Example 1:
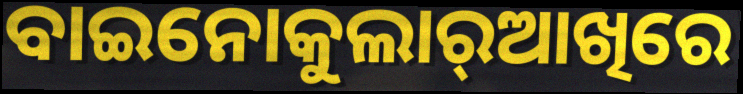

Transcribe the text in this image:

ବାଇନୋକୁଲାର୍‌ଆଖିରେ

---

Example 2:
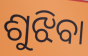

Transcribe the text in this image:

ଶୁଝିବା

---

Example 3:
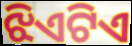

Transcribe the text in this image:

ଝିଏଟିଏ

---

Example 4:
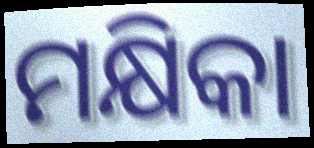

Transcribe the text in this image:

ମକ୍ଷିକା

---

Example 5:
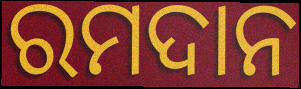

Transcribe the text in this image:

ରମଦାନ